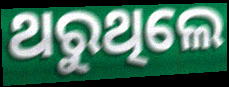
ଥରୁଥିଲେ